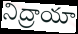
నిద్రాయా